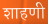
शाहणी